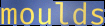
moulds